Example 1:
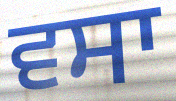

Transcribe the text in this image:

ਵਸਾ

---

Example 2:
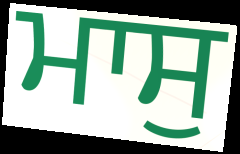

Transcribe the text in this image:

ਮਾਸੁ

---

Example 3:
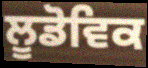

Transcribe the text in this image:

ਲੂਡੋਵਿਕ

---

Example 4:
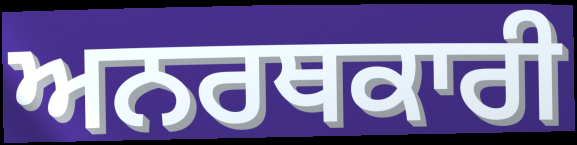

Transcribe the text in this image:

ਅਨਰਥਕਾਰੀ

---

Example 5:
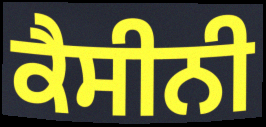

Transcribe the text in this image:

ਕੈਸੀਨੀ